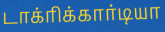
டாக்ரிக்கார்டியா